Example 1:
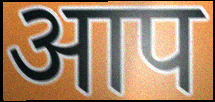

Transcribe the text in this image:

आप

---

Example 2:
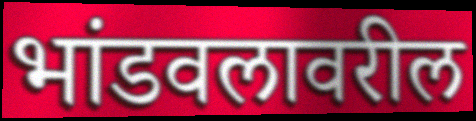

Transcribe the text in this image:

भांडवलावरील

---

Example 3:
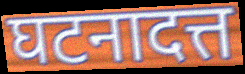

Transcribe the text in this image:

घटनादत्त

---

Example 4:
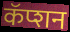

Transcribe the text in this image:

कॅप्शन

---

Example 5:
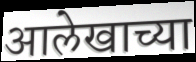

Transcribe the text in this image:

आलेखाच्या